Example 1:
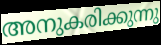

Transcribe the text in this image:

അനുകരിക്കുന്നു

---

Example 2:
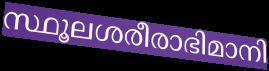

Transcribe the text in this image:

സ്ഥൂലശരീരാഭിമാനി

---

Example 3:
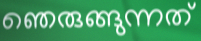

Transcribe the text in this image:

ഞെരുങ്ങുന്നത്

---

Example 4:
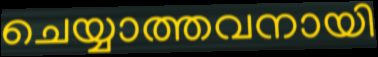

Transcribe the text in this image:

ചെയ്യാത്തവനായി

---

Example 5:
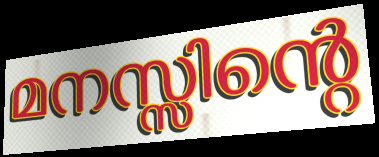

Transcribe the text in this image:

മനസ്സിന്റെ